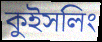
কুইসলিং